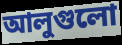
আলুগুলো